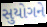
સુયોગને